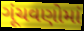
ગૂંચવણોમાં